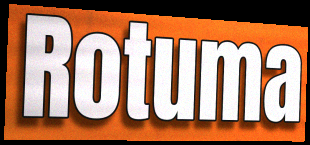
Rotuma